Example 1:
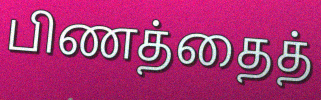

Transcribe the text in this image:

பிணத்தைத்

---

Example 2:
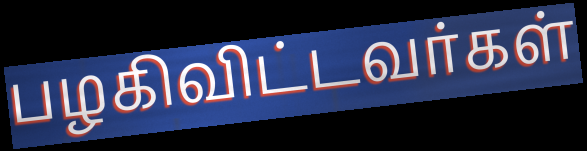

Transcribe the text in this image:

பழகிவிட்டவர்கள்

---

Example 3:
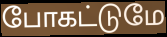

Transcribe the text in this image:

போகட்டுமே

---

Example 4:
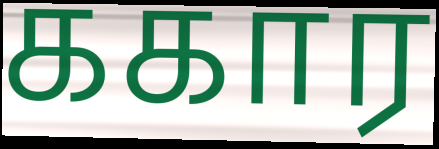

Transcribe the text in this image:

ககார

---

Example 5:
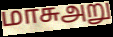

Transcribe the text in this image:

மாசுஅறு